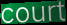
court